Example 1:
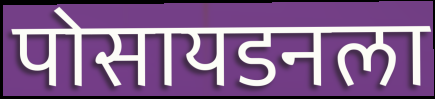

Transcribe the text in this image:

पोसायडनला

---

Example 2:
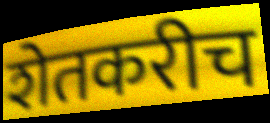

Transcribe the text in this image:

शेतकरीच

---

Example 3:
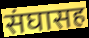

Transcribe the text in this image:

संघासह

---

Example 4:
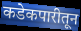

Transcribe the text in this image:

कडेकपारीतून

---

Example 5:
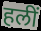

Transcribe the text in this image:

हलीं